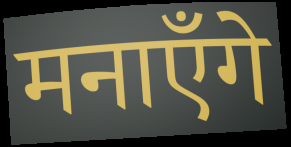
मनाएँगे